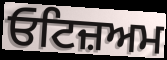
ਓਟਿਜ਼ਅਮ